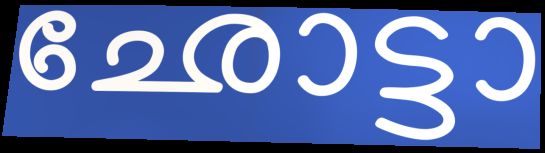
ഛോട്ടാ